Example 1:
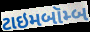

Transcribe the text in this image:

ટાઇમબૉમ્બ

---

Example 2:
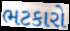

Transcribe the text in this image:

ભટકારો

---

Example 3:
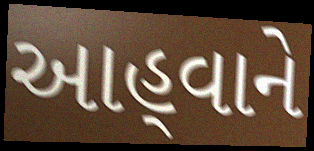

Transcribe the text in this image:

આહ્‌વાને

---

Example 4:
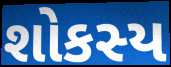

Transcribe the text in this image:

શોકસ્ય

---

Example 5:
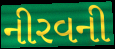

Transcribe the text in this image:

નીરવની